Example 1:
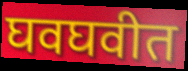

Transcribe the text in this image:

घवघवीत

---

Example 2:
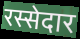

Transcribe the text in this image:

रस्सेदार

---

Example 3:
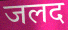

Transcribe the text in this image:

जलद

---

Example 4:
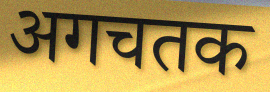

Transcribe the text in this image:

अगचतक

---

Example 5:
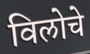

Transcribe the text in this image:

विलोचे